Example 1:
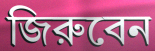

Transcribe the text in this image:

জিরুবেন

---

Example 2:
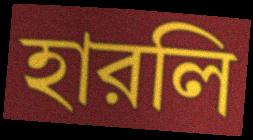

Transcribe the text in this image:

হারলি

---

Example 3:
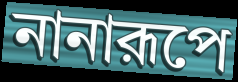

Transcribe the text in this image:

নানারূপে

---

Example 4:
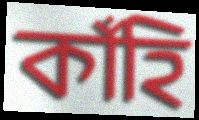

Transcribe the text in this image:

কাঁহি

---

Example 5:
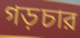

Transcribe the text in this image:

গড়চার